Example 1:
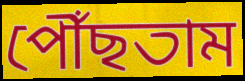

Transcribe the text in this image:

পৌঁছতাম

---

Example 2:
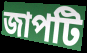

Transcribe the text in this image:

জাপটি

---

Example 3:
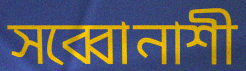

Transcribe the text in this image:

সব্বোনাশী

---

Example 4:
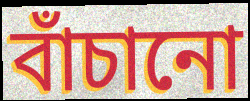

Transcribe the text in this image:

বাঁচানো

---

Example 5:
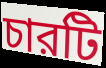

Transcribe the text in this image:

চারটি